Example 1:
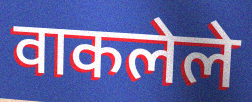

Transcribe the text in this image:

वाकलेले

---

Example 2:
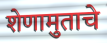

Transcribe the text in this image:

शेणामुताचे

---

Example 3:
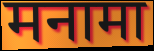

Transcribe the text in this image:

मनामा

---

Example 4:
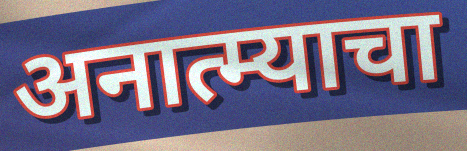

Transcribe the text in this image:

अनात्म्याचा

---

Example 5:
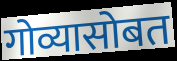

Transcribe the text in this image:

गोव्यासोबत